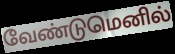
வேண்டுமெனில்